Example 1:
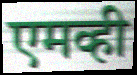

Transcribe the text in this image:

एमव्ही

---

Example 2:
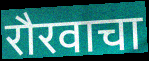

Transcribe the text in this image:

रौरवाचा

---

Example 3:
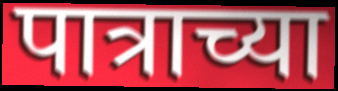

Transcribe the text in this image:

पात्राच्‍या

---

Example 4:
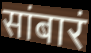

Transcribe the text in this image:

सांबारं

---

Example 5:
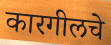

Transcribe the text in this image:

कारगीलचे